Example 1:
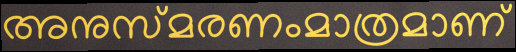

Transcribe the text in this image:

അനുസ്മരണംമാത്രമാണ്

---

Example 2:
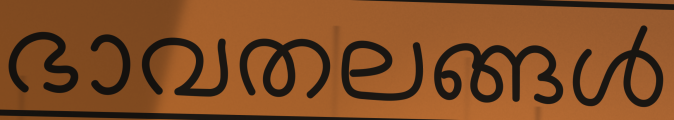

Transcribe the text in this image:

ഭാവതലങ്ങൾ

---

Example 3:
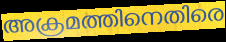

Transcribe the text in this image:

അക്രമത്തിനെതിരെ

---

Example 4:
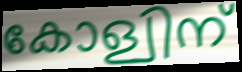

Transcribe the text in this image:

കോള്വിന്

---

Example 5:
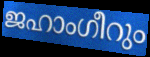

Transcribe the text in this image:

ജഹാംഗീറും